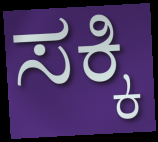
ಸಕ್ಕಿ